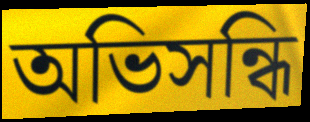
অভিসন্ধি